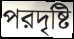
পরদৃষ্টি